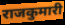
राजकुमारी